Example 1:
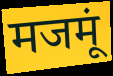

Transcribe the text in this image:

मजमूं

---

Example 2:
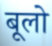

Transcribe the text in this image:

बूलो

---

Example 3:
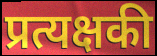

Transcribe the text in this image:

प्रत्यक्षकी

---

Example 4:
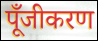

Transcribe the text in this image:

पूँजीकरण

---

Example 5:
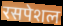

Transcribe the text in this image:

रसपेशल